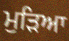
ਮੁੜਿਆ